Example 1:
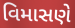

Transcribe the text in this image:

વિમાસણે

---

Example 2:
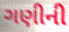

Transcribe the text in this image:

ગણીની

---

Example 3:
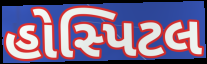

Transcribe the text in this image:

હોસ્પિટલ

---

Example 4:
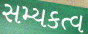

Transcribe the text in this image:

સમ્યકત્વ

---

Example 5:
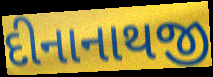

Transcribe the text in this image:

દીનાનાથજી